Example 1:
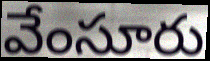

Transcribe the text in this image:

వేంసూరు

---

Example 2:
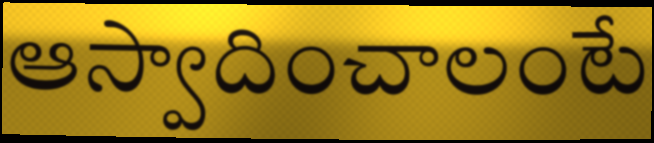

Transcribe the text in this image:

ఆస్వాదించాలంటే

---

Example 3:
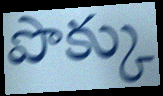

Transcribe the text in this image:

పొక్కు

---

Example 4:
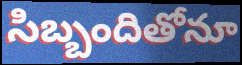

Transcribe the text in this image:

సిబ్బందితోనూ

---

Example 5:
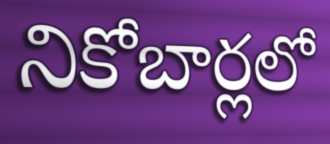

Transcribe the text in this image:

నికోబార్లలో